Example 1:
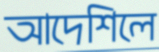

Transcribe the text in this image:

আদেশিলে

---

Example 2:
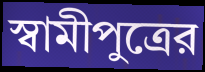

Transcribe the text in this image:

স্বামীপুত্রের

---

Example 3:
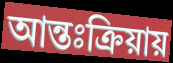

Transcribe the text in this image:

আন্তঃক্রিয়ায়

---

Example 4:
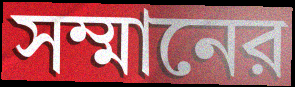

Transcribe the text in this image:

সম্মানের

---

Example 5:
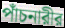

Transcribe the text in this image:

পাঁচনারীর